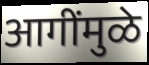
आगींमुळे